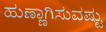
ಹುಣ್ಣಾಗಿಸುವಷ್ಟು